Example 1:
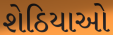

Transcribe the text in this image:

શેઠિયાઓ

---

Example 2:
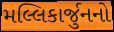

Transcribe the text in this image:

મલ્લિકાર્જુનનો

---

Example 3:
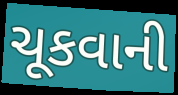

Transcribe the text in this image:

ચૂકવાની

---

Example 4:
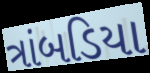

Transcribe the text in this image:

ત્રાંબડિયા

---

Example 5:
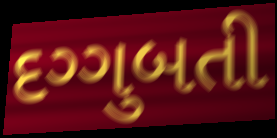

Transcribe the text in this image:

દગ્ગુબતી